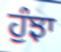
ਹੁੰਝਾ